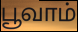
பூவாம்